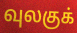
வுலகுக்